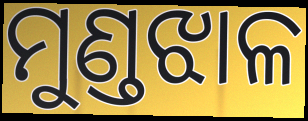
ମୁଣ୍ଡଝାଳ